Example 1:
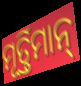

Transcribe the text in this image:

ମୂର୍ତ୍ତିମାନ୍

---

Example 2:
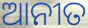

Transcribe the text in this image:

ଆନୀତ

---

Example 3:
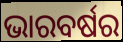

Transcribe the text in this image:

ଭାରବର୍ଷର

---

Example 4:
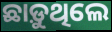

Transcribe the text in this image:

ଛାଡ଼ୁଥିଲେ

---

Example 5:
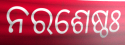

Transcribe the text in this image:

ନରଶେଷ୍ଠଃ